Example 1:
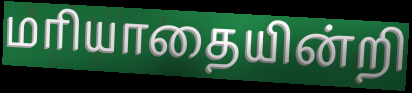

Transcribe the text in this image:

மரியாதையின்றி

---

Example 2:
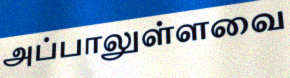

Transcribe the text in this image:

அப்பாலுள்ளவை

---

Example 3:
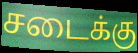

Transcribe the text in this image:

சடைக்கு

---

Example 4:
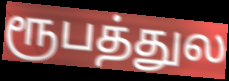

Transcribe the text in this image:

ரூபத்துல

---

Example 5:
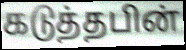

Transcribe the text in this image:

கடுத்தபின்